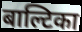
बाल्टिका